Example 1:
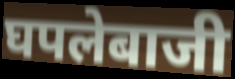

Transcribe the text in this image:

घपलेबाजी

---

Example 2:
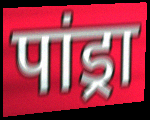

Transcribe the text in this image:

पांड्रा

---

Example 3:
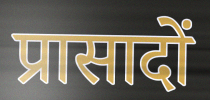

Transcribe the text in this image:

प्रासादों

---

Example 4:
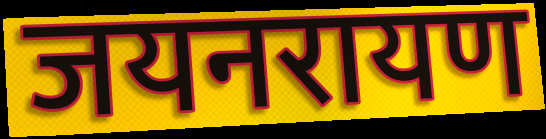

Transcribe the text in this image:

जयनरायण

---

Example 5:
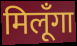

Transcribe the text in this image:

मिलूँगा